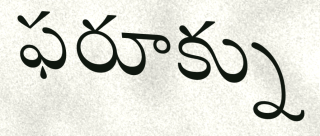
ఫరూక్ను